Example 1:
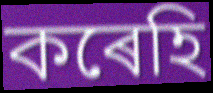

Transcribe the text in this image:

কৰেহি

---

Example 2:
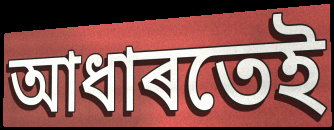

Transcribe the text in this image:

আধাৰতেই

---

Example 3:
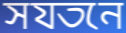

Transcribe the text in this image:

সযতনে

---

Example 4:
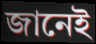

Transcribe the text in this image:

জানেই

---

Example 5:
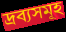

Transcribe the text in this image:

দ্ৰব্যসমূহ